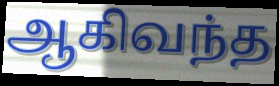
ஆகிவந்த